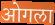
ओगला